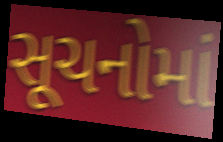
સૂચનોમાં